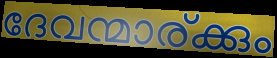
ദേവന്മാര്ക്കും